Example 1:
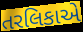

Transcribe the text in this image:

તરલિકાએ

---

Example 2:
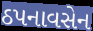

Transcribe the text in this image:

ઠપનાવસેન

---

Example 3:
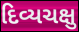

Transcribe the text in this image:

દિવ્યચક્ષુ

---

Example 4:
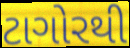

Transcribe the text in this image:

ટાગોરથી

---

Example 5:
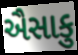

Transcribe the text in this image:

ઐસાકુ